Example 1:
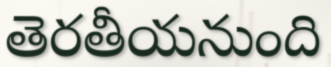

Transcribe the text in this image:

తెరతీయనుంది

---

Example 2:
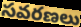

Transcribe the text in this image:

సవరణలు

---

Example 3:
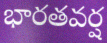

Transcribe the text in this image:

భారతవర్ష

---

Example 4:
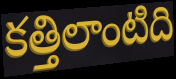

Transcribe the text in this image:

కత్తిలాంటిది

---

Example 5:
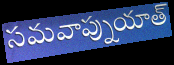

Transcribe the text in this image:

సమవాప్నుయాత్